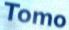
Tomo